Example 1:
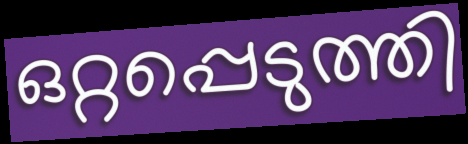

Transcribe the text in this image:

ഒറ്റപ്പെടുത്തി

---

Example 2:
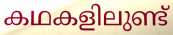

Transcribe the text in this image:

കഥകളിലുണ്ട്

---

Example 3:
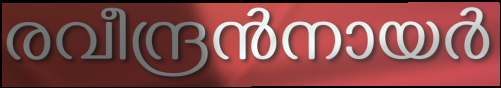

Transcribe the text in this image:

രവീന്ദ്രൻനായർ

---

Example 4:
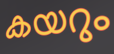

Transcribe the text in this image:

കയറും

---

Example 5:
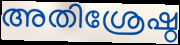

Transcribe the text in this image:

അതിശ്രേഷ്ഠ